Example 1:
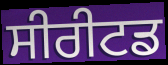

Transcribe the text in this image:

ਸੀਰੀਟਡ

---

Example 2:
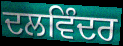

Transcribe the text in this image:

ਦਲਵਿੰਦਰ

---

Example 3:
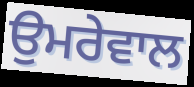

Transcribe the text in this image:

ਉਮਰੇਵਾਲ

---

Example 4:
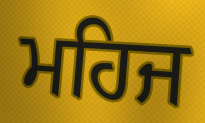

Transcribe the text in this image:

ਮਹਿਜ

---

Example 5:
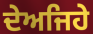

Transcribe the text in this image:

ਦੇਅਜਿਹੇ